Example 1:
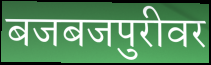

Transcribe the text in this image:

बजबजपुरीवर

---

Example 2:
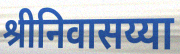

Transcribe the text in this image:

श्रीनिवासय्या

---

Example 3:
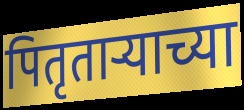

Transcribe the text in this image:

पितृताऱ्याच्या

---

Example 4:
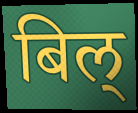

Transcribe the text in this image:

बिल्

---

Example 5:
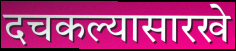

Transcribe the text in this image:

दचकल्यासारखे